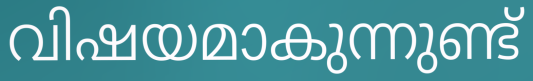
വിഷയമാകുന്നുണ്ട്